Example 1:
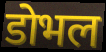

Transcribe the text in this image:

डोभल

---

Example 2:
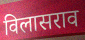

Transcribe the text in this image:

विलासराव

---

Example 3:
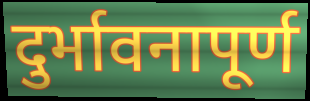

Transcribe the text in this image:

दुर्भावनापूर्ण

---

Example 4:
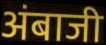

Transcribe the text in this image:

अंबाजी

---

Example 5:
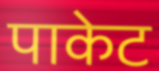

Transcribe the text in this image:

पाकेट